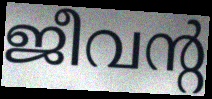
ജീവന്റ